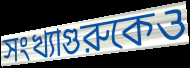
সংখ্যাগুরুকেও